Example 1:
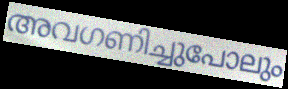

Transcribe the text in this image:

അവഗണിച്ചുപോലും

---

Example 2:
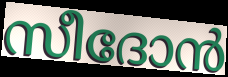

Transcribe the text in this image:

സീദോൻ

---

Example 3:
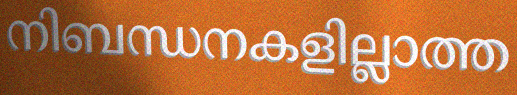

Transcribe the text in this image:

നിബന്ധനകളില്ലാത്ത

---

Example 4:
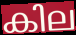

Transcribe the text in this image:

കില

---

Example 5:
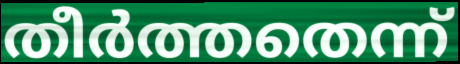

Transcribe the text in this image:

തീർത്തതെന്ന്